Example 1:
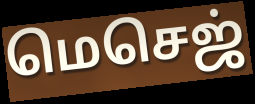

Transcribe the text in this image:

மெசெஜ்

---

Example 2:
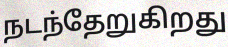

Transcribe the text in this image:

நடந்தேறுகிறது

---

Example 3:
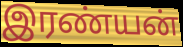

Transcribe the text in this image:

இரண்யன்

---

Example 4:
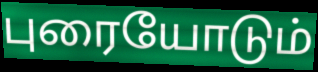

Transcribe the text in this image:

புரையோடும்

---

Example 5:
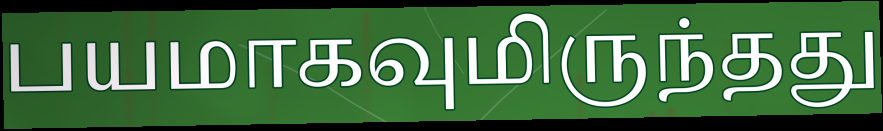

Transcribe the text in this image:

பயமாகவுமிருந்தது